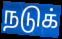
நடுக்